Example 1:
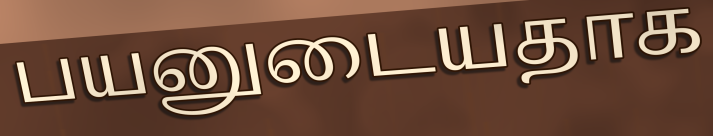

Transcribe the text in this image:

பயனுடையதாக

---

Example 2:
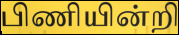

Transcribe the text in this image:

பிணியின்றி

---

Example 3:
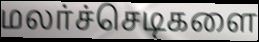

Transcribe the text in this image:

மலர்ச்செடிகளை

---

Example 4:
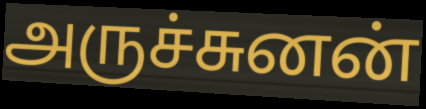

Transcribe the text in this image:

அருச்சுனன்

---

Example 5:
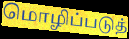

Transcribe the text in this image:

மொழிப்படுத்